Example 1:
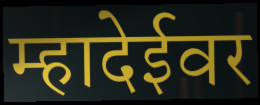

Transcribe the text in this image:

म्हादेईवर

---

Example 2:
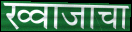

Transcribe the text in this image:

ख्वाजाचा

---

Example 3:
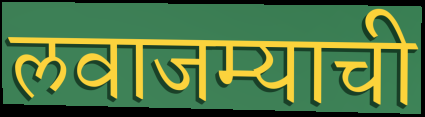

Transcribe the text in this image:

लवाजम्याची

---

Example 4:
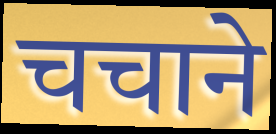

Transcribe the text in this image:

चचाने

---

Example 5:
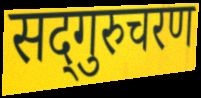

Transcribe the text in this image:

सद्‍गुरुचरण